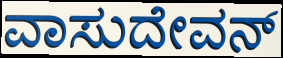
ವಾಸುದೇವನ್